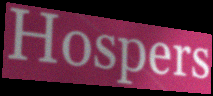
Hospers